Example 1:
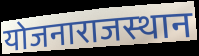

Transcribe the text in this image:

योजनाराजस्थान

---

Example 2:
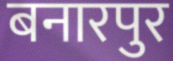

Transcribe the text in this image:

बनारपुर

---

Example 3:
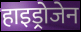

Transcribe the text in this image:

हाइड्रोजेन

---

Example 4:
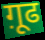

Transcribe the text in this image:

ग़ूढ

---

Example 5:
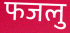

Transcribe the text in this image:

फजलु